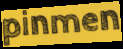
pinmen